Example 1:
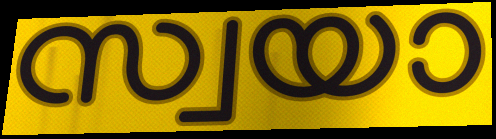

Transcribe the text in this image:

സ്വയാ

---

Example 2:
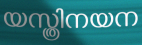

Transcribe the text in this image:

യസ്ത്രിനയന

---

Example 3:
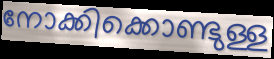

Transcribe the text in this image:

നോക്കിക്കൊണ്ടുള്ള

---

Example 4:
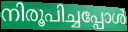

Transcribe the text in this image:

നിരൂപിച്ചപ്പോൾ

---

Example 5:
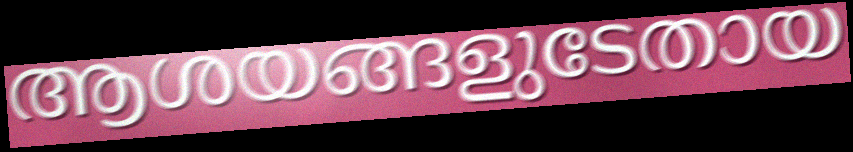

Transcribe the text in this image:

ആശയങ്ങളുടേതായ